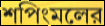
শপিংমলের